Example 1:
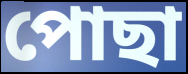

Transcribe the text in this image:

পোছা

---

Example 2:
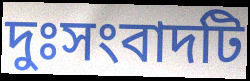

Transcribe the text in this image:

দুঃসংবাদটি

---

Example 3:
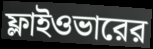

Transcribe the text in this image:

ফ্লাইওভারের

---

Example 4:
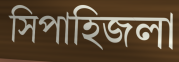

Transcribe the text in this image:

সিপাহিজলা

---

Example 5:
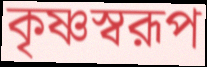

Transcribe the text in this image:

কৃষ্ণস্বরূপ